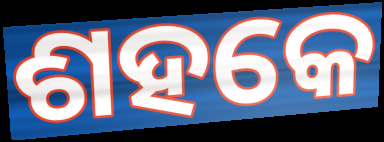
ଶହକେ